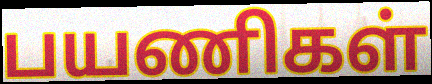
பயணிகள்